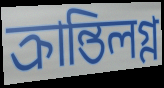
ক্রান্তিলগ্ন